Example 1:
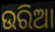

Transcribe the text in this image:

ଉରିଆ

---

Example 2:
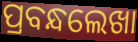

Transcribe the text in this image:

ପ୍ରବନ୍ଧଲେଖା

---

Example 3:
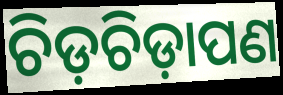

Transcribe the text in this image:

ଚିଡ଼ଚିଡ଼ାପଣ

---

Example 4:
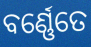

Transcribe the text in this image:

ବର୍ଣ୍ଣେତେ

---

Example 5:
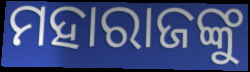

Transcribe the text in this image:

ମହାରାଜଙ୍କୁ